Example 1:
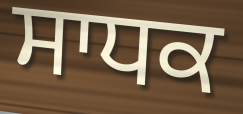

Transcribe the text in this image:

ਸਾਧਕ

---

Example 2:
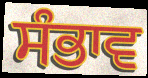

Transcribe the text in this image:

ਸੰਭਾਵ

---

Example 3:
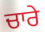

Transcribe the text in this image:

ਚਾਰੇ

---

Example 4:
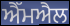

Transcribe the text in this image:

ਐੱਮਐਲ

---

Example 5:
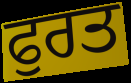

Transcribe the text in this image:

ਫੁਰਤ